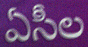
ఏసీల